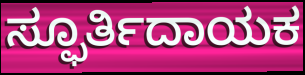
ಸ್ಫೂರ್ತಿದಾಯಕ